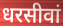
धरसीवां